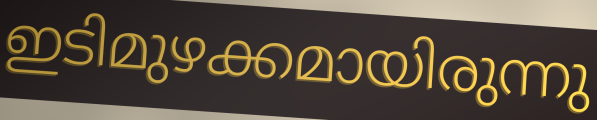
ഇടിമുഴക്കമായിരുന്നു